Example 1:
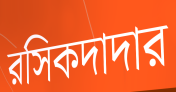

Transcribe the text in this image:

রসিকদাদার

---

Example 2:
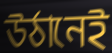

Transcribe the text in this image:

উঠানেই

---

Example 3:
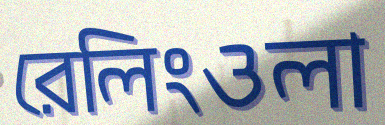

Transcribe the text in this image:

রেলিংওলা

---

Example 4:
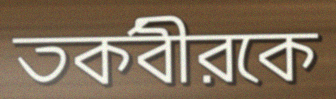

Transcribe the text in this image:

তর্কবীরকে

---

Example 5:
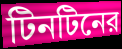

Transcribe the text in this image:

টিনটিনের